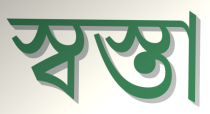
স্বস্তা